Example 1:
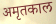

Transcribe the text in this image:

अमृतकाल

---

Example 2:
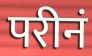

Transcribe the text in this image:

परीनं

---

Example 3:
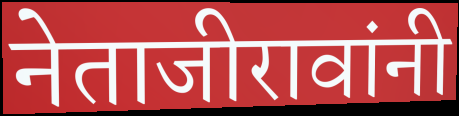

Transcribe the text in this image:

नेताजीरावांनी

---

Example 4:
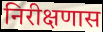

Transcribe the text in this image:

निरीक्षणास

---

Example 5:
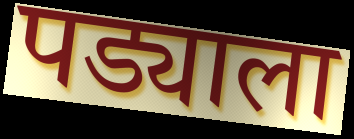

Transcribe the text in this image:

पड्याला